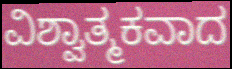
ವಿಶ್ವಾತ್ಮಕವಾದ